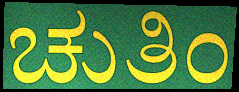
ಚುತಿಂ